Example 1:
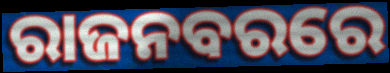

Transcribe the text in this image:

ରାଜନବରରେ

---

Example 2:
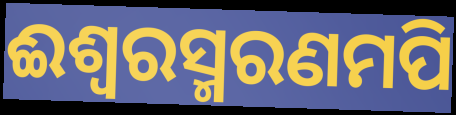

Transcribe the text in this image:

ଈଶ୍ଵରସ୍ମରଣମପି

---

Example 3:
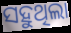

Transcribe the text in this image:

ସହୁଥିଲା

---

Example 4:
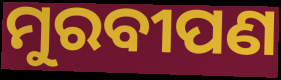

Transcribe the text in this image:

ମୁରବୀପଣ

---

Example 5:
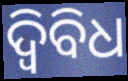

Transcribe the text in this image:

ଦ୍ୱିବିଧ